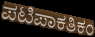
ಪಟಿಪಾಕತಿಕಂ